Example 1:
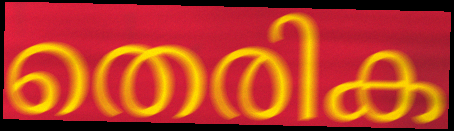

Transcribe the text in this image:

തെരിക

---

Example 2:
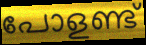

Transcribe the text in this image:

പോളണ്ട്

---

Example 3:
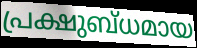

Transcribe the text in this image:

പ്രക്ഷുബ്ധമായ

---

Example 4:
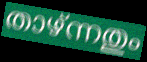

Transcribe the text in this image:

താഴ്ന്നതും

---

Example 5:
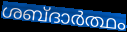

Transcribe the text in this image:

ശബ്ദാർത്ഥം